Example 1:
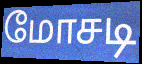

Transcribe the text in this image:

மோசடி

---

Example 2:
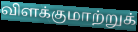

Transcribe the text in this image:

விளக்குமாற்றுக்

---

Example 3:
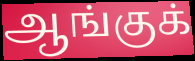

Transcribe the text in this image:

ஆங்குக்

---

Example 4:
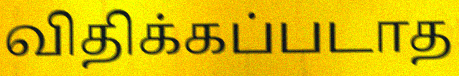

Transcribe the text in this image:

விதிக்கப்படாத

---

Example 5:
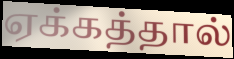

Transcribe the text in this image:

ஏக்கத்தால்